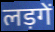
लड़गें